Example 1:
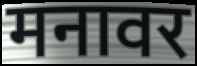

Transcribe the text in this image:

मनावर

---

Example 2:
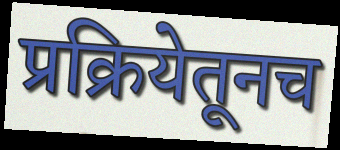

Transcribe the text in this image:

प्रक्रियेतूनच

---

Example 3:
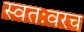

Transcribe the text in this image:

स्वतःवरच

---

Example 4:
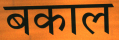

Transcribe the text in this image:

बकाल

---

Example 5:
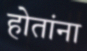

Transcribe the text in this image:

होतांना